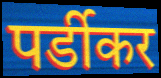
पर्डीकर